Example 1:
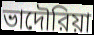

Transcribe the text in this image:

ভাদৌরিয়া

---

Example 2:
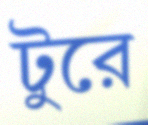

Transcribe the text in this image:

টুরে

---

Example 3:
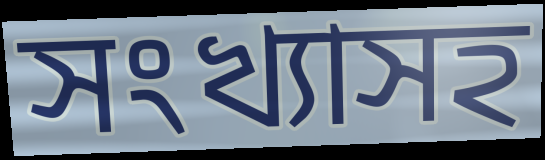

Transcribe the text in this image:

সংখ্যাসহ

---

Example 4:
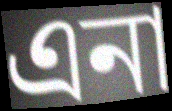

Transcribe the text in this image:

এনা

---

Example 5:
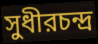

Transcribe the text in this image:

সুধীরচন্দ্র